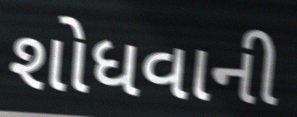
શોધવાની